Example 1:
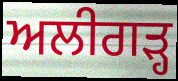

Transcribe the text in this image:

ਅਲੀਗੜ੍ਹ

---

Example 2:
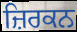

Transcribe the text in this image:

ਜ਼ਿਰਕਨ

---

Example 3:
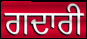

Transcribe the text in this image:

ਗਦਾਰੀ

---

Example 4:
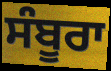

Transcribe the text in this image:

ਸੰਬੂਰਾ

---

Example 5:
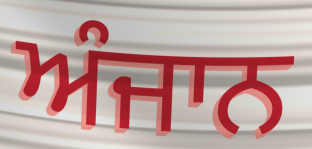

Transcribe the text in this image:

ਅੰਜਾਨ